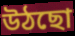
উঠছো